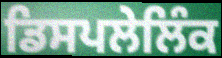
ਡਿਸਪਲੇਲਿੰਕ